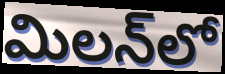
మిలన్‌లో